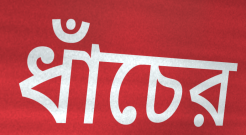
ধাঁচের